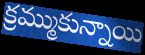
క్రమ్ముకున్నాయి